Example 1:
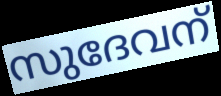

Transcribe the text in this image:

സുദേവന്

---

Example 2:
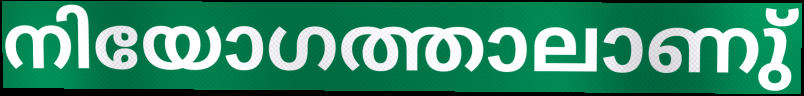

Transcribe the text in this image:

നിയോഗത്താലാണു്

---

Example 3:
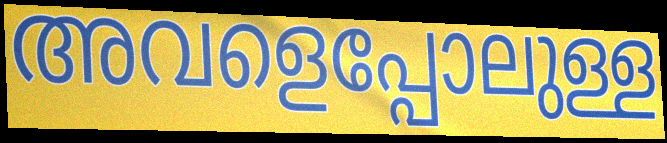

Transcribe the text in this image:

അവളെപ്പോലുള്ള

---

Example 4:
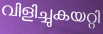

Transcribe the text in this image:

വിളിച്ചുകയറ്റി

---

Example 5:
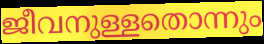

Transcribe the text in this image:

ജീവനുള്ളതൊന്നും